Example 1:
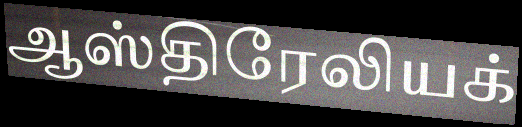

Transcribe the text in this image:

ஆஸ்திரேலியக்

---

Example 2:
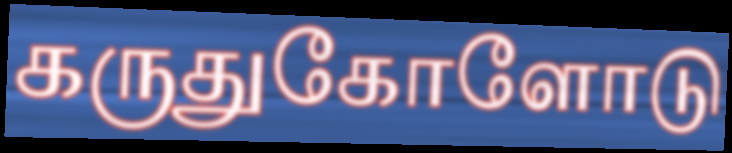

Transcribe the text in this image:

கருதுகோளோடு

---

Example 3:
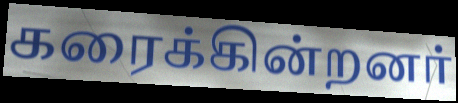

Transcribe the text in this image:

கரைக்கின்றனர்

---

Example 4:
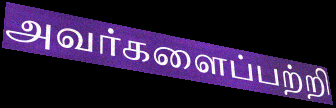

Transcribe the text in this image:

அவர்களைப்பற்றி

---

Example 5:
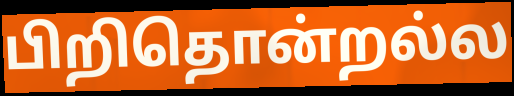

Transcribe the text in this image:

பிறிதொன்றல்ல